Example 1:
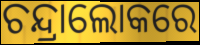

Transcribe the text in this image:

ଚନ୍ଦ୍ରାଲୋକରେ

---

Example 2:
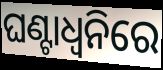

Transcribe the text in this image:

ଘଣ୍ଟାଧ୍ୱନିରେ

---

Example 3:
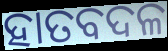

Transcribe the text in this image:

ହାତବଦଳ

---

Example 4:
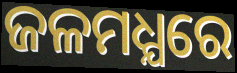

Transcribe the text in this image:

ଜଳମଧ୍ଯରେ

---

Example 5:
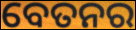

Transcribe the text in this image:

ବେତନର